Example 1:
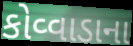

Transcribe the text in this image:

કોવ્વાડાના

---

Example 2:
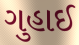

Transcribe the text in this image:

ગુહાઈ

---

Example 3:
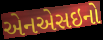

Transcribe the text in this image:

એનએસઇનો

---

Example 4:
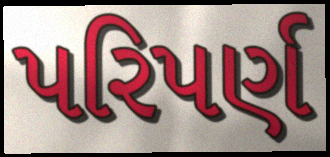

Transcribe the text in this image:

પરિપર્ણ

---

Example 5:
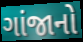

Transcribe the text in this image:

ગાંજાનો